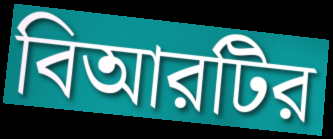
বিআরটির